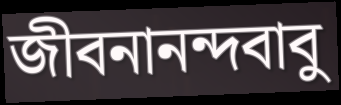
জীবনানন্দবাবু